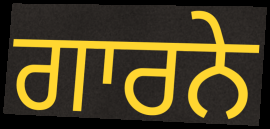
ਗਾਰਨੇ